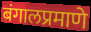
बंगालप्रमाणे